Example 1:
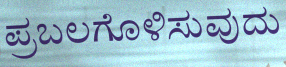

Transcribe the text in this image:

ಪ್ರಬಲಗೊಳಿಸುವುದು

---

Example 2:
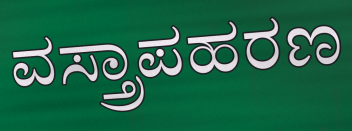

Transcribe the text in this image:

ವಸ್ತ್ರಾಪಹರಣ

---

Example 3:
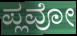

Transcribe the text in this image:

ಪ್ಲವೋ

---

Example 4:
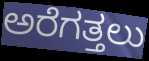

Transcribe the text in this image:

ಅರೆಗತ್ತಲು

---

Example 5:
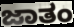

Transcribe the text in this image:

ಜಾತಂ